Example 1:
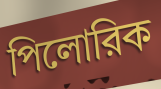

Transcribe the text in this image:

পিলোরিক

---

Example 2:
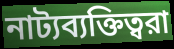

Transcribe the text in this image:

নাট্যব্যক্তিত্বরা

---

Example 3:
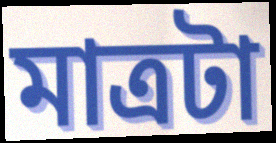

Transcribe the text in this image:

মাত্রটা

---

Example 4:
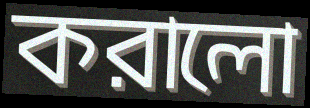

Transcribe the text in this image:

করালো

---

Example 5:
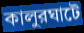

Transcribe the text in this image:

কালুরঘাটে